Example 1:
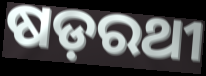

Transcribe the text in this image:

ଷଡ଼ରଥୀ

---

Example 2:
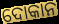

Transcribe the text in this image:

ଦୋକାନ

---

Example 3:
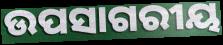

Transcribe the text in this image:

ଉପସାଗରୀୟ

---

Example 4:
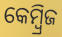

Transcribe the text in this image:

କେମ୍ବ୍ରିଜ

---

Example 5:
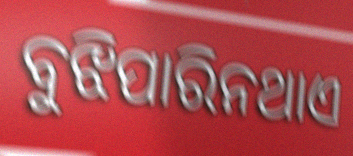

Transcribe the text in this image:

ବୁଝିପାରିନଥାଏ